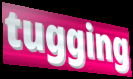
tugging